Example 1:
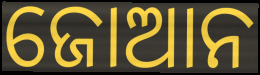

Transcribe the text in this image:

ଜୋଆନ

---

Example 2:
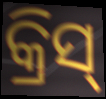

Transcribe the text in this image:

କ୍ରିସ୍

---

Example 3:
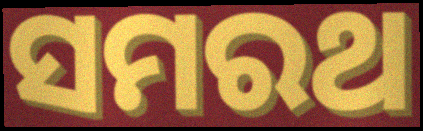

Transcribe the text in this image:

ସମରଥ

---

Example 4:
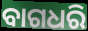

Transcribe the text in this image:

ବାଗଧରି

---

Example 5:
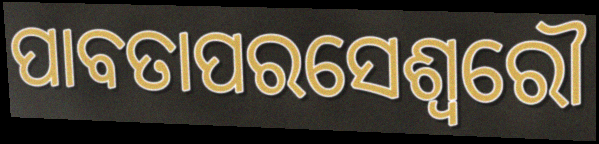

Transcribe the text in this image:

ପାବତାପରସେଶ୍ୱରୌ